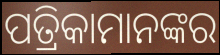
ପତ୍ରିକାମାନଙ୍କର